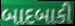
બાદબાકી